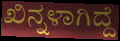
ಖಿನ್ನಳಾಗಿದ್ದೆ